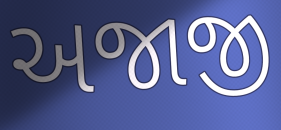
અજાજી